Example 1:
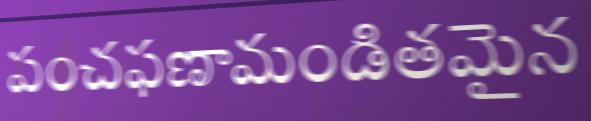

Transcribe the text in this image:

పంచఫణామండితమైన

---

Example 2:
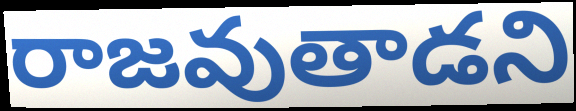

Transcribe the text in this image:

రాజవుతాడని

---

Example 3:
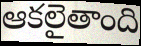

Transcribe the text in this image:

ఆకలైతాంది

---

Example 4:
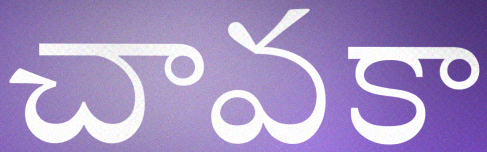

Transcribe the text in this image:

చావకా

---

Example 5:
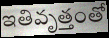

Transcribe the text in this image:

ఇతివృత్తంతో